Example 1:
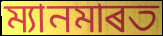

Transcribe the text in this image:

ম্যানমাৰত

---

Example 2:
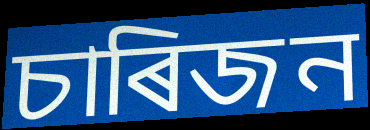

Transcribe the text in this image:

চাৰিজন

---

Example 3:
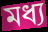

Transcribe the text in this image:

মধ্য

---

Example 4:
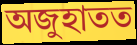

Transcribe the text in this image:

অজুহাতত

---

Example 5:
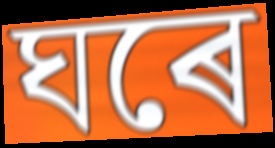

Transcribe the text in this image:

ঘৰে